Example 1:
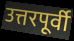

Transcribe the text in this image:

उत्तरपूर्वी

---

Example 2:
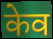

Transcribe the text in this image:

केव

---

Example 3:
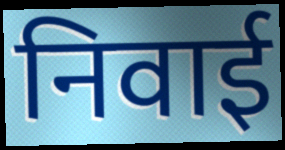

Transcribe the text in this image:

निवाई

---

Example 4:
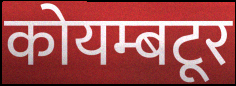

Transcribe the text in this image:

कोयम्‍बटूर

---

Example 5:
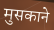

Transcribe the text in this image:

मुसकाने